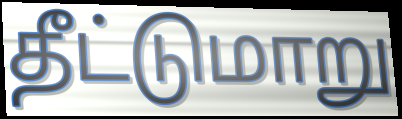
தீட்டுமாறு